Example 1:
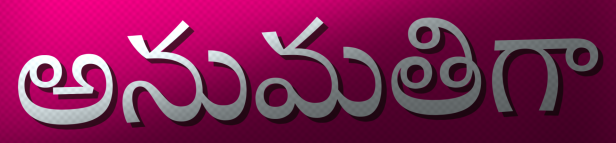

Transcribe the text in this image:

అనుమతిగా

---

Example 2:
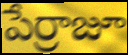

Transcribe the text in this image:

పేర్రాజూ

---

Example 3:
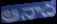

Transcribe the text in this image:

ఆనాద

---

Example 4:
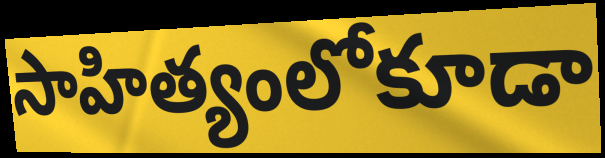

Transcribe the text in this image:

సాహిత్యంలోకూడా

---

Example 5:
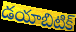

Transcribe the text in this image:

డయాబిటిక్